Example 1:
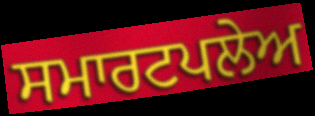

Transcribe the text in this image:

ਸਮਾਰਟਪਲੇਅ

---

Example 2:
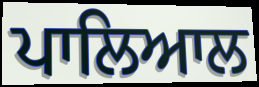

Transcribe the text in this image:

ਪਾਲਿਆਲ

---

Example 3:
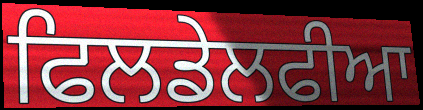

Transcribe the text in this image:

ਫਿਲਡੇਲਫੀਆ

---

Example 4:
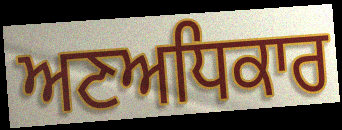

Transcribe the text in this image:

ਅਣਅਧਿਕਾਰ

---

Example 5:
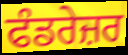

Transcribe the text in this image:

ਫੰਡਰੇਜ਼ਰ